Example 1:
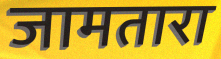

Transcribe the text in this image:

जामतारा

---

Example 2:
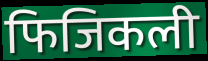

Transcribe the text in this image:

फिजिकली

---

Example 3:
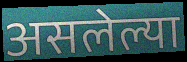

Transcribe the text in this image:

असलेल्या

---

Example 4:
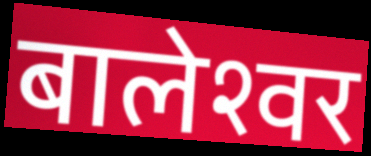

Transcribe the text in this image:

बालेश्वर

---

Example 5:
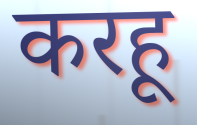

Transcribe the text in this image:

करहू